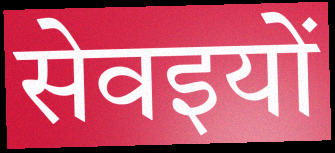
सेवइयों